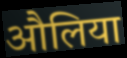
औलिया